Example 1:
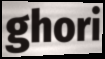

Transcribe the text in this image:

ghori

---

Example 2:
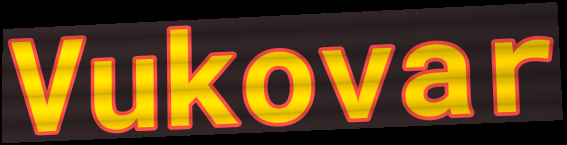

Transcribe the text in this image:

Vukovar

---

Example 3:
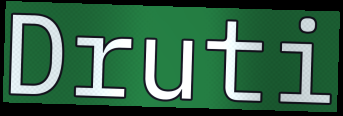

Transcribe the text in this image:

Druti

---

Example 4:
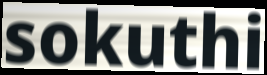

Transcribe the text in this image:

sokuthi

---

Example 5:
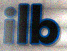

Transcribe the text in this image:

ilb